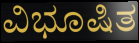
ವಿಭೂಷಿತ